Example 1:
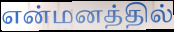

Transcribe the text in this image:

என்மனத்தில்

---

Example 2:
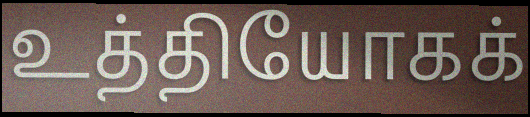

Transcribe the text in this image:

உத்தியோகக்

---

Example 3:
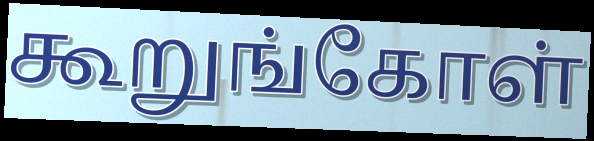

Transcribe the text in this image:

கூறுங்கோள்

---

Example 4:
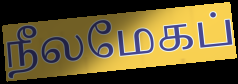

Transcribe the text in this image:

நீலமேகப்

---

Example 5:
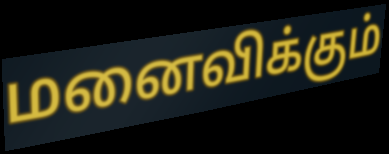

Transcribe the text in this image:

மனைவிக்கும்